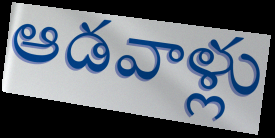
ఆడవాళ్లు